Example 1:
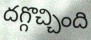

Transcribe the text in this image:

దగ్గొచ్చింది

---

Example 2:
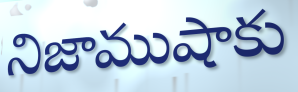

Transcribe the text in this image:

నిజాముషాకు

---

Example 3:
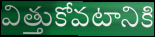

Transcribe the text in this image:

విత్తుకోవటానికి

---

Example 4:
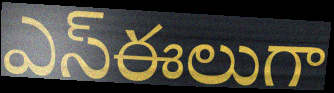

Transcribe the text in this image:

ఎస్ఈలుగా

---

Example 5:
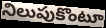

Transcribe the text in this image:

నిలుపుకొంటూ